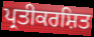
ਪ੍ਰਤੀਕਰਸ਼ਿਤ